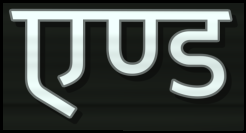
एण्ड